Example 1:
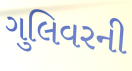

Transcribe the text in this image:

ગુલિવરની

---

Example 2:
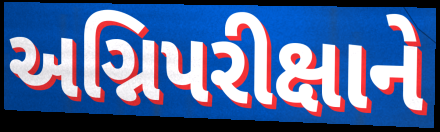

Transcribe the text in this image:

અગ્નિપરીક્ષાને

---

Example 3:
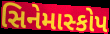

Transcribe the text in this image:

સિનેમાસ્કોપ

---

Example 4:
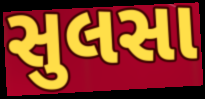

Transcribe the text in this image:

સુલસા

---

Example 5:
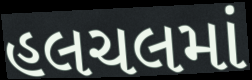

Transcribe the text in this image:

હલચલમાં